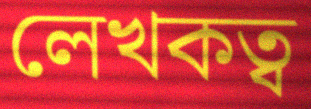
লেখকত্ব